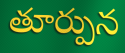
తూర్పున